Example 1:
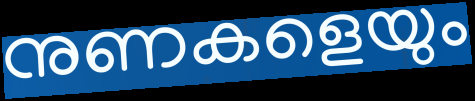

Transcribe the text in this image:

നുണകളെയും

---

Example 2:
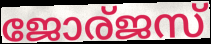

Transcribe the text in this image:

ജോര്ജസ്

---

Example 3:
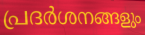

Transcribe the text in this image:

പ്രദർശനങ്ങളും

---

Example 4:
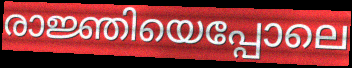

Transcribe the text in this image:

രാജ്ഞിയെപ്പോലെ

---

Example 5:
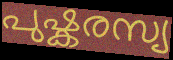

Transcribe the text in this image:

പുഷ്കരസ്യ